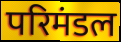
परिमंडल